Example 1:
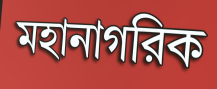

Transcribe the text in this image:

মহানাগরিক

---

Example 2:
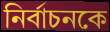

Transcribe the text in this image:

নির্বাচনকে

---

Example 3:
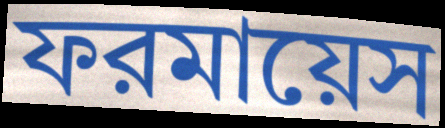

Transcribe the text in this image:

ফরমায়েস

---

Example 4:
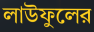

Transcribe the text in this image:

লাউফুলের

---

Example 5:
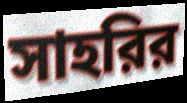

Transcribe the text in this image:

সাহরির